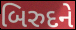
બિરુદને